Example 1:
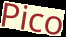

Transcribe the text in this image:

Pico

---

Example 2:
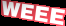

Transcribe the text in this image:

WEEE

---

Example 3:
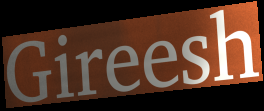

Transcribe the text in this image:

Gireesh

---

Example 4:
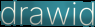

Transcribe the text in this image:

drawid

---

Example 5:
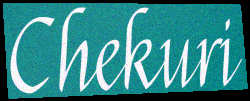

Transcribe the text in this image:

Chekuri